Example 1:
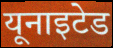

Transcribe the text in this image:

यूनाइटेड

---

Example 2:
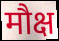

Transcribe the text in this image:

मौक्ष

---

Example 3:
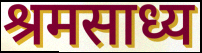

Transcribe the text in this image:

श्रमसाध्य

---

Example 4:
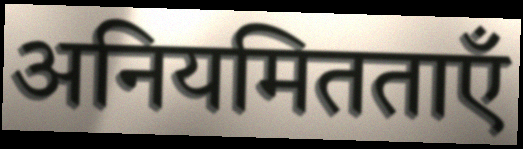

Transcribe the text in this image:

अनियमितताएँ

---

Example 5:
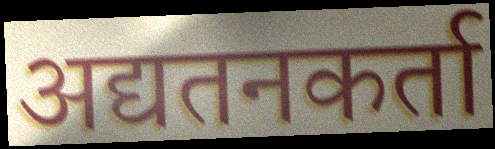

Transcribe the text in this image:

अद्यतनकर्ता